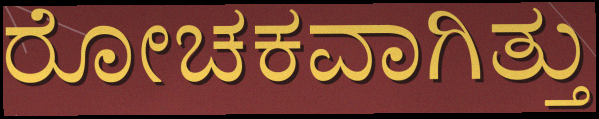
ರೋಚಕವಾಗಿತ್ತು